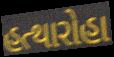
હત્થારોહા